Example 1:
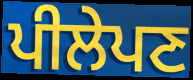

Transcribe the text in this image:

ਪੀਲੇਪਣ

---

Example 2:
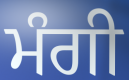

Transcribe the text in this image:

ਮੰਗੀ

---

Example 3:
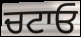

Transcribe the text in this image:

ਚਟਾਓ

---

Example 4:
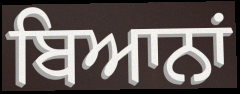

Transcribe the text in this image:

ਬਿਆਨਾਂ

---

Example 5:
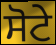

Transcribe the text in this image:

ਸੋਟੇ